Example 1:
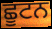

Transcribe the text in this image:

ਛੂਟਨ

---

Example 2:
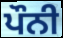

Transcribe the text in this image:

ਪੌਨੀ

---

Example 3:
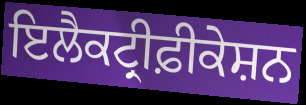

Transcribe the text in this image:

ਇਲੈਕਟ੍ਰੀਫ਼ੀਕੇਸ਼ਨ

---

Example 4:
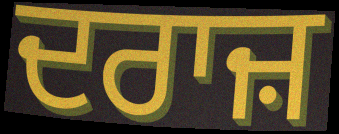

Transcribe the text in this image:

ਦਰਾਜ਼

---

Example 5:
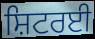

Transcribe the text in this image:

ਸ਼ਿਟਰਈ